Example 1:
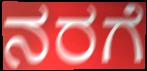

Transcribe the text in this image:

ನರಗೆ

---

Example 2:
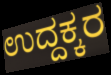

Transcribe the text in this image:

ಉದ್ದಕ್ಕರ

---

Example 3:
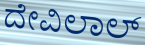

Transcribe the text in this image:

ದೇವಿಲಾಲ್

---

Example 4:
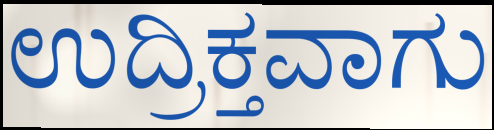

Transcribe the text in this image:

ಉದ್ರಿಕ್ತವಾಗು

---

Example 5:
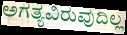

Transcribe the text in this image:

ಅಗತ್ಯವಿರುವುದಿಲ್ಲ